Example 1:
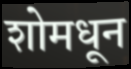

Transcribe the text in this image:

शोमधून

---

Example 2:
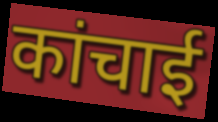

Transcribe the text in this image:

कांचाई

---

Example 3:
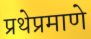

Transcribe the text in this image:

प्रथेप्रमाणे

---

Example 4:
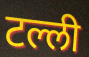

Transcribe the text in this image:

टल्ली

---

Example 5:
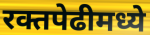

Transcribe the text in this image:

रक्तपेढीमध्ये